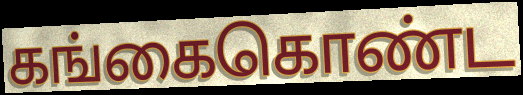
கங்கைகொண்ட